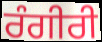
ਰੰਗੀਰੀ